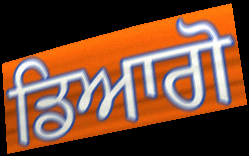
ਡਿਆਗੋ